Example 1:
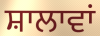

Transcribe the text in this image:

ਸ਼ਾਲਾਵਾਂ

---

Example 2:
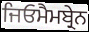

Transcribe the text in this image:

ਜਿਓਮੈਮਬ੍ਰੇਨ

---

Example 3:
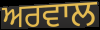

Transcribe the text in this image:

ਅਰਵਾਲ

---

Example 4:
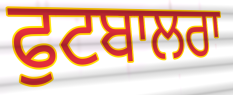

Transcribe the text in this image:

ਫੁਟਬਾਲਰਾ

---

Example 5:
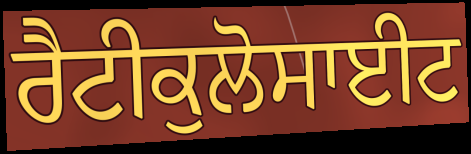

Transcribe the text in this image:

ਰੈਟੀਕੁਲੋਸਾਈਟ